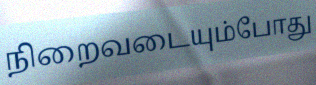
நிறைவடையும்போது